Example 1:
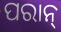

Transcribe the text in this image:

ପରାନ୍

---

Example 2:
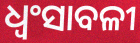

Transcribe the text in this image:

ଧ୍ୱଂସାବଳୀ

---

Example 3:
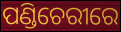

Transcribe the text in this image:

ପଣ୍ଡିଚେରୀରେ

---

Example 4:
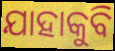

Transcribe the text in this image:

ଯାହାକୁବି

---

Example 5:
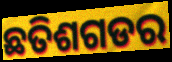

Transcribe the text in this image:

ଛତିଶଗଡର